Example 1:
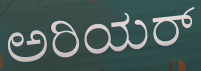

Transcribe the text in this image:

ಅರಿಯರ್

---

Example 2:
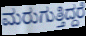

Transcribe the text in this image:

ಮರುಗುತ್ತಿದ್ದರೆ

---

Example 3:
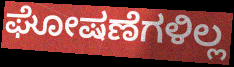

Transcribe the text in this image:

ಘೋಷಣೆಗಳಿಲ್ಲ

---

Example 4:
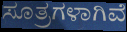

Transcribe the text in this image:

ಸೂತ್ರಗಳಾಗಿವೆ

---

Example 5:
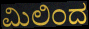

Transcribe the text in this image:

ಮಿಲಿಂದ